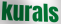
kurals